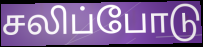
சலிப்போடு